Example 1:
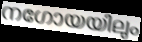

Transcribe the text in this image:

നഗോയയിലും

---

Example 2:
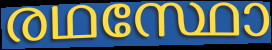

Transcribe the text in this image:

രഥസ്ഥോ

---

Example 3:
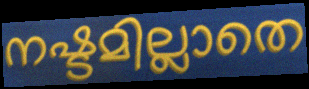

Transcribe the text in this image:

നഷ്ടമില്ലാതെ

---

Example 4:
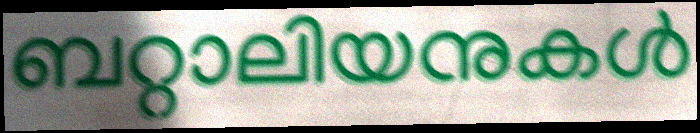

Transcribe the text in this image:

ബറ്റാലിയനുകൾ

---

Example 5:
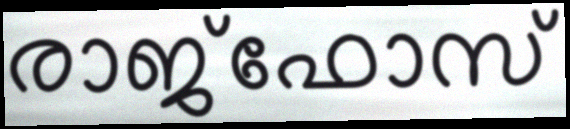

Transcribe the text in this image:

രാജ്ഫോസ്